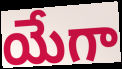
యేగా